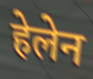
हेलेन